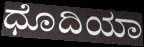
ಧೊದಿಯಾ